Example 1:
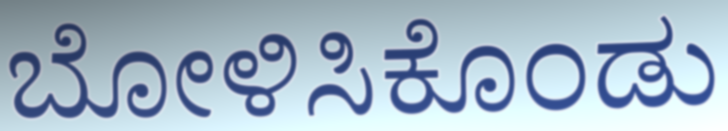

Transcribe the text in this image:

ಬೋಳಿಸಿಕೊಂಡು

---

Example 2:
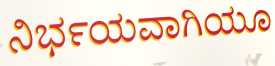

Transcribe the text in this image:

ನಿರ್ಭಯವಾಗಿಯೂ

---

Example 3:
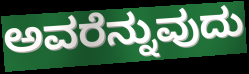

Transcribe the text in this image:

ಅವರೆನ್ನುವುದು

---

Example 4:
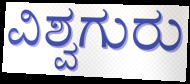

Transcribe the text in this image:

ವಿಶ್ವಗುರು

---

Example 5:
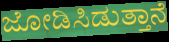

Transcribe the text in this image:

ಜೋಡಿಸಿಡುತ್ತಾನೆ